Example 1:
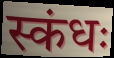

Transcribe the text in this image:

स्कंधः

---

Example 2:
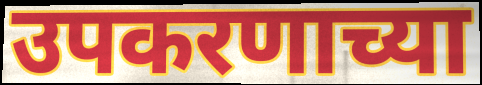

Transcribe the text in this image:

उपकरणाच्या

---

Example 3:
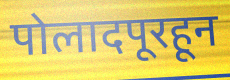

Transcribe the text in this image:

पोलादपूरहून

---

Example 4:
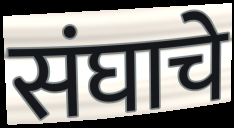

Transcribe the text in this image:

संघाचे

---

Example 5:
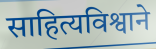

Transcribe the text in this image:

साहित्यविश्वाने